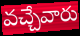
వచ్చేవారు